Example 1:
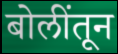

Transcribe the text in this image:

बोलींतून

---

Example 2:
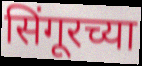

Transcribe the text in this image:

सिंगूरच्या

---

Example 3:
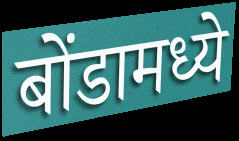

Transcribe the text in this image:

बोंडामध्ये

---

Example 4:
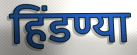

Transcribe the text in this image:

हिंडण्या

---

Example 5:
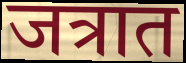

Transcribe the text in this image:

जत्रात